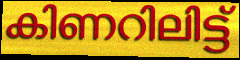
കിണറിലിട്ട്